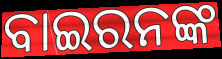
ବାଇରନଙ୍କ